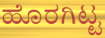
ಹೊರಗಿಟ್ಟ